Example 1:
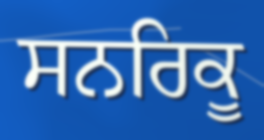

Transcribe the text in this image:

ਸਨਰਿਕੂ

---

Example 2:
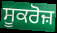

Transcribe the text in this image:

ਸੂਕਰੋਜ਼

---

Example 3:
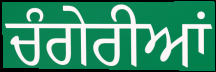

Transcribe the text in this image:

ਚੰਗੇਰੀਆਂ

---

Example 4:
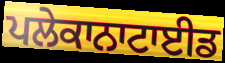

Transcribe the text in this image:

ਪਲੇਕਾਨਾਟਾਈਡ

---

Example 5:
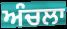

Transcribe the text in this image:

ਅੰਚਲਾ